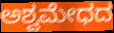
ಅಶ್ವಮೇಧದ